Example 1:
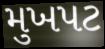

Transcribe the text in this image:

મુખપટ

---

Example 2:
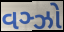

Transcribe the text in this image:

વઞ્ઝો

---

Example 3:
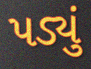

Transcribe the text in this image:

પડ્યું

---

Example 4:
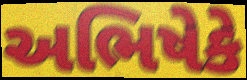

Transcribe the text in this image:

અભિષેકે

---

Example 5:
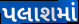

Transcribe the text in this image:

પલાશમાં